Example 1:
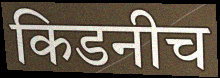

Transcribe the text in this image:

किडनीच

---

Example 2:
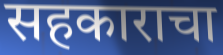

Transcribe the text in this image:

सहकाराचा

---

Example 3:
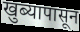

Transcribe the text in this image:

खुब्यापासून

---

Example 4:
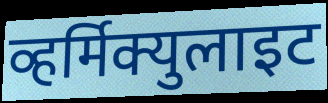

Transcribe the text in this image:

व्हर्मिक्युलाइट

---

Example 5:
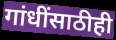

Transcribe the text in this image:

गांधींसाठीही